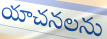
యాచనలను